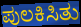
ಪುಲಕಿಸಿತು